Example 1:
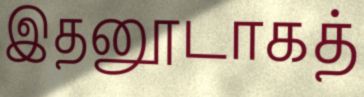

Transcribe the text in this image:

இதனூடாகத்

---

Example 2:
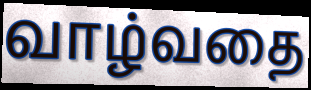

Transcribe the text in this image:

வாழ்வதை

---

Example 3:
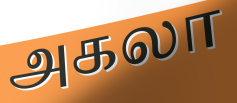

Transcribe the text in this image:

அகலா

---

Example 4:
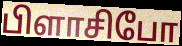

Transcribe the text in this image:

பிளாசிபோ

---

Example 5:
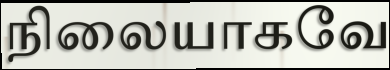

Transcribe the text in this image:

நிலையாகவே